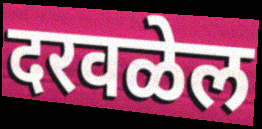
दरवळेल